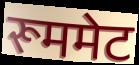
रूममेट